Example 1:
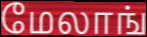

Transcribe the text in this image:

மேலாங்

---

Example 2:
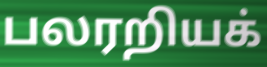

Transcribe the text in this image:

பலரறியக்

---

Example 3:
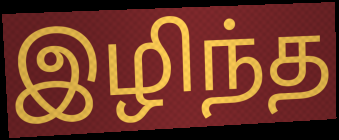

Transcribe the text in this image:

இழிந்த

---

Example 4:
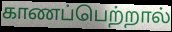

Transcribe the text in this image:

காணப்பெற்றால்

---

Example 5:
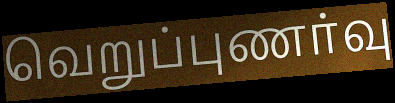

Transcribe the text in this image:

வெறுப்புணர்வு